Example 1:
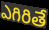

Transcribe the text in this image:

ఎగిరితే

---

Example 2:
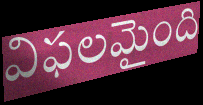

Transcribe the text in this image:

విఫలమైంది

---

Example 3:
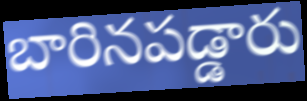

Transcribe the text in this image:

బారినపడ్డారు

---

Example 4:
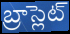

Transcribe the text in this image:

బ్రాస్లెట్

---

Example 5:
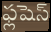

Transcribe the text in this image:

ఫ్లషెస్